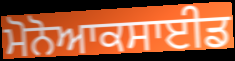
ਮੋਨੋਆਕਸਾਈਡ